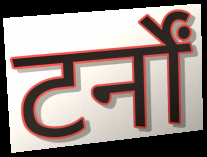
टर्नों